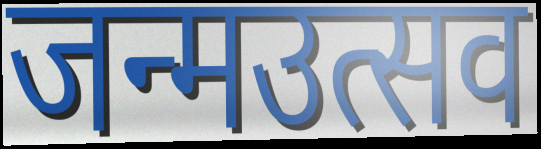
जन्मउत्सव